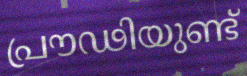
പ്രൗഢിയുണ്ട്